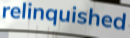
relinquished